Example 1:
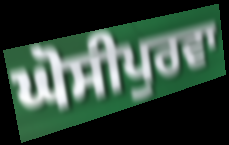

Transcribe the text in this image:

ਘੋਸੀਪੁਰਵਾ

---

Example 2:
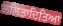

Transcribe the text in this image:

ਲਲਿਤਾਦਿਤਿਆ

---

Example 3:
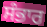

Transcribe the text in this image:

ਸੰਭਾਰ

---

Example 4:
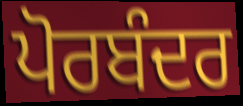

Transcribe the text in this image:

ਪੋਰਬੰਦਰ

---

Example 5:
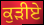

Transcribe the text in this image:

ਕੁੜੀਏ